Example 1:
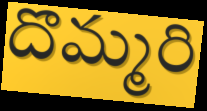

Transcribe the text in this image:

దొమ్మరి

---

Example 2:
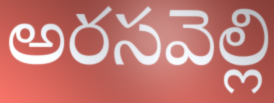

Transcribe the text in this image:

అరసవెల్లి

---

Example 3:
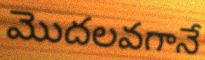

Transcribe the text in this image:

మొదలవగానే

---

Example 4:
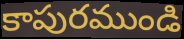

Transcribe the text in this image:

కాపురముండి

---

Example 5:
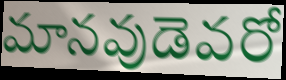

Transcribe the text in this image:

మానవుడెవరో